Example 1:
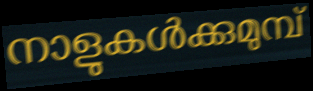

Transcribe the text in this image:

നാളുകൾക്കുമുമ്പ്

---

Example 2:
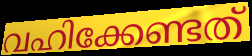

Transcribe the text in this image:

വഹിക്കേണ്ടത്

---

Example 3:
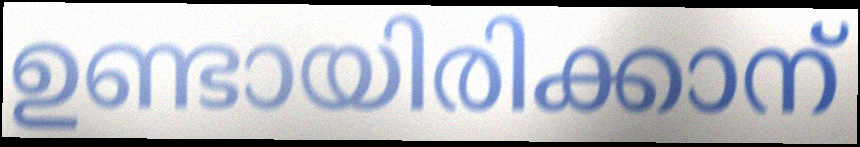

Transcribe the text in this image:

ഉണ്ടായിരിക്കാന്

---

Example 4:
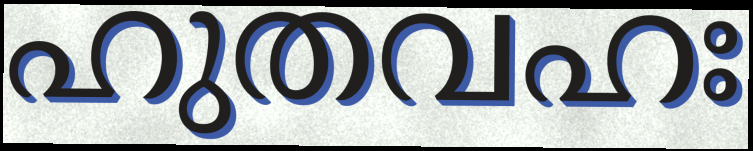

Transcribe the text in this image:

ഹുതവഹഃ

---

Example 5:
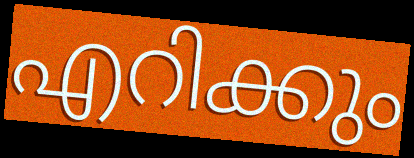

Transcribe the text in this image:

എറിക്കും